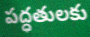
పద్ధతులకు